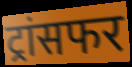
ट्रांसफर